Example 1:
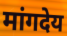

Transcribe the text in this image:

मांगदेय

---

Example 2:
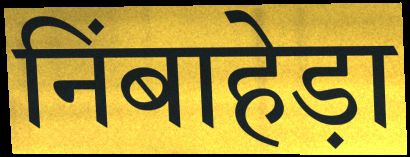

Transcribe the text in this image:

निंबाहेड़ा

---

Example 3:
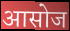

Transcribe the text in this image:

आसोज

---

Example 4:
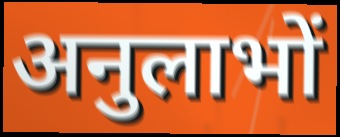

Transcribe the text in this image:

अनुलाभों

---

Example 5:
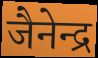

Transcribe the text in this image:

जैनेन्द्र